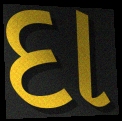
દા